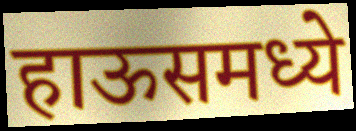
हाऊसमध्ये